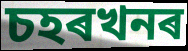
চহৰখনৰ